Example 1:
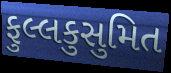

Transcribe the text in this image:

ફુલ્લકુસુમિત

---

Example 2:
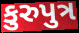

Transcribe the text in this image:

કુરુપુત્ર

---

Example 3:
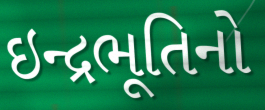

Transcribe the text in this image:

ઇન્દ્રભૂતિનો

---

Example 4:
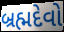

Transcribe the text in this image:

બ્રહ્મદેવો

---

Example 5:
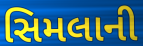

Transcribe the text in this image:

સિમલાની